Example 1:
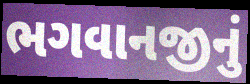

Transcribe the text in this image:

ભગવાનજીનું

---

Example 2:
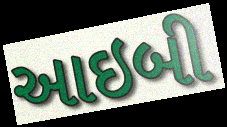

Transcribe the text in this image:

આઇબી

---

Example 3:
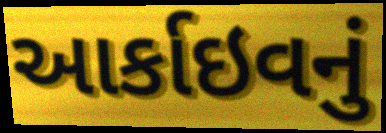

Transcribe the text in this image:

આર્કાઇવનું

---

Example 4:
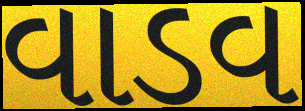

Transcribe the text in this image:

વાડવ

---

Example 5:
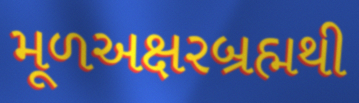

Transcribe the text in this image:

મૂળઅક્ષરબ્રહ્મથી